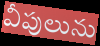
వీపులును